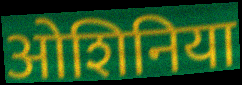
ओशिनिया